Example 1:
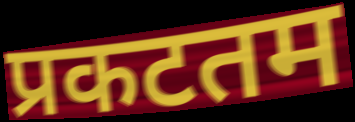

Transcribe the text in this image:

प्रकटतम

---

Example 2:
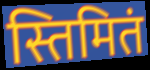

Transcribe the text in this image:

स्तिमितं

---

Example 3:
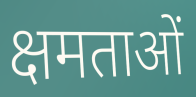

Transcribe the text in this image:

क्षमताओं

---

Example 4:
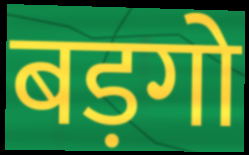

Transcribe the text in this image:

बड़गो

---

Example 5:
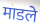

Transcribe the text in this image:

माडले